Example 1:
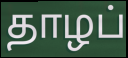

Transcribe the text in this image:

தாழப்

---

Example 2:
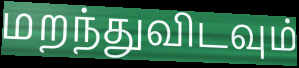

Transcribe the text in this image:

மறந்துவிடவும்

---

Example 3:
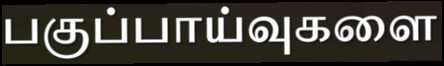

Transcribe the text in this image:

பகுப்பாய்வுகளை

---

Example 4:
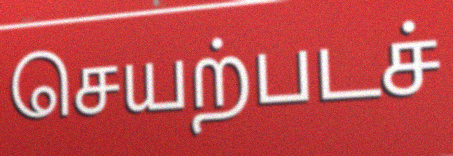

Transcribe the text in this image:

செயற்படச்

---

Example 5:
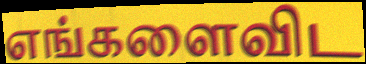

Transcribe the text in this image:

எங்களைவிட